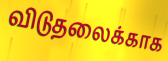
விடுதலைக்காக